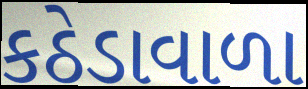
કઠેડાવાળા